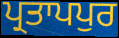
ਪ੍ਰਤਾਪਪੁਰ